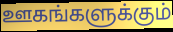
ஊகங்களுக்கும்